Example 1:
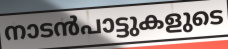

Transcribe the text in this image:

നാടൻപാട്ടുകളുടെ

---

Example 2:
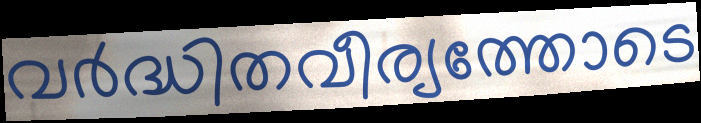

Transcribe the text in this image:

വർദ്ധിതവീര്യത്തോടെ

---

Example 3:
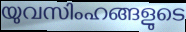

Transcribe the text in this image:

യുവസിംഹങ്ങളുടെ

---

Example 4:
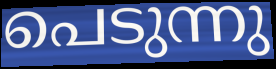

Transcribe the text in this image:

പെടുന്നു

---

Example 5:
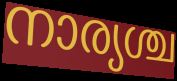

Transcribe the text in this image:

നാര്യശ്ച